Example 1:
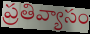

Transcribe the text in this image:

ప్రతివ్యాసం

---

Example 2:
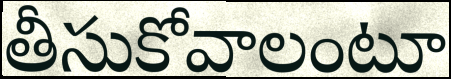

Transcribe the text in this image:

తీసుకోవాలంటూ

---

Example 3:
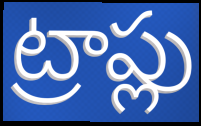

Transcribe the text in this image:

ట్రాప్లు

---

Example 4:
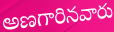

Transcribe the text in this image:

అణగారినవారు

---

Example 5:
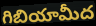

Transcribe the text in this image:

గిబియామీద